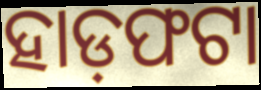
ହାଡ଼ଫଟା